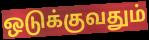
ஒடுக்குவதும்